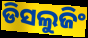
ଡିସଲୁଜିଂ